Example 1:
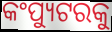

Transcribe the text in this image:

କଂପ୍ୟୁଟରକୁ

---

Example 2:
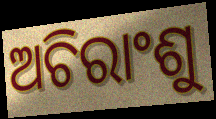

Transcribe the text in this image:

ଅଚିରାଂଶୁ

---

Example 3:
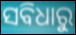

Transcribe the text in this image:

ସବିଧାରୁ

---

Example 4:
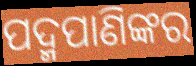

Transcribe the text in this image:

ପଦ୍ମପାଣିଙ୍କର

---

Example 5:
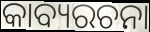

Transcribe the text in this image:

କାବ୍ୟରଚନା